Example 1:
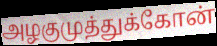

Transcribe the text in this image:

அழகுமுத்துக்கோன்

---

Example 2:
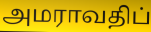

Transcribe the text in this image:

அமராவதிப்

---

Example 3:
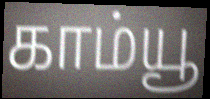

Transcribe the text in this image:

காம்யூ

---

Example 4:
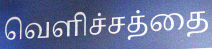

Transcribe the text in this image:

வெளிச்சத்தை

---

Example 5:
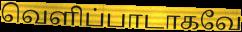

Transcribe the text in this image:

வெளிப்பாடாகவே